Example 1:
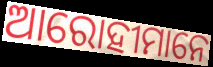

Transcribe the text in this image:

ଆରୋହୀମାନେ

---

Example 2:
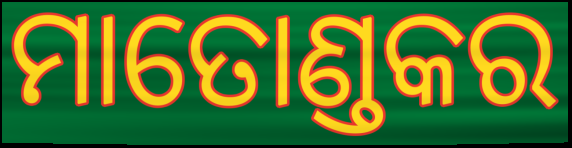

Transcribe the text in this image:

ମାତୋଣ୍ଡକର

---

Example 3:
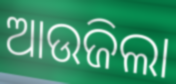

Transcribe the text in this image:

ଆଉଜିଲା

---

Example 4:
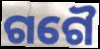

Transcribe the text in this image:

ଗଗୈ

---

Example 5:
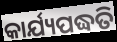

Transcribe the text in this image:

କାର୍ଯ୍ୟପଦ୍ଧତି